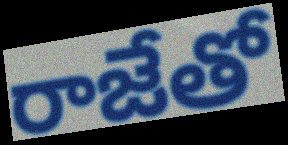
రాజేతో